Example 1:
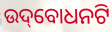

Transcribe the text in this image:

ଉଦ୍‌ବୋଧନଟି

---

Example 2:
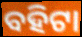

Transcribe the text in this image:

ବହିଟା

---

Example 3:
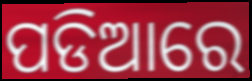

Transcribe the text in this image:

ପଡିଆରେ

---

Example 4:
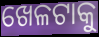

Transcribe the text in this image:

ଖେଳଟାକୁ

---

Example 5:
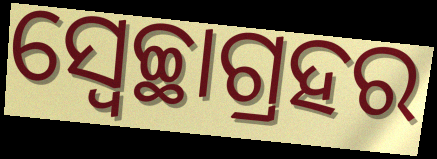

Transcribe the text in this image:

ସ୍ବେଚ୍ଛାଗ୍ରହର